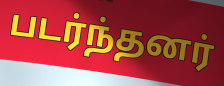
படர்ந்தனர்